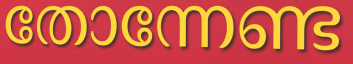
തോന്നേണ്ട